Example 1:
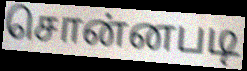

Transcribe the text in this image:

சொன்னபடி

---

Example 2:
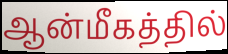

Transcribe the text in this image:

ஆன்மீகத்தில்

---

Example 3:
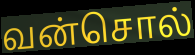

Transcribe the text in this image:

வன்சொல்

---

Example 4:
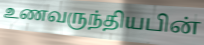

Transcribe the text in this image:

உணவருந்தியபின்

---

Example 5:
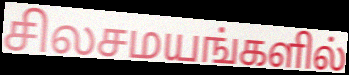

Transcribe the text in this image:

சிலசமயங்களில்